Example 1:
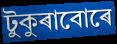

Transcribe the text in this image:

টুকুৰাবোৰে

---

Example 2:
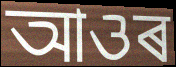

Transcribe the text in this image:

আওৰ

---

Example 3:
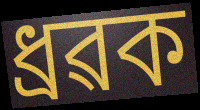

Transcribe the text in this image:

ধ্ৰৱক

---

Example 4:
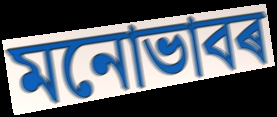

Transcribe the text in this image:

মনোভাবৰ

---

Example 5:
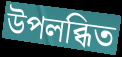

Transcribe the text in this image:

উপলব্ধিত